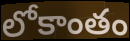
లోకాంతం